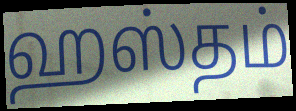
ஹஸ்தம்